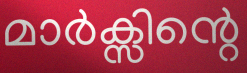
മാർക്സിന്റെ